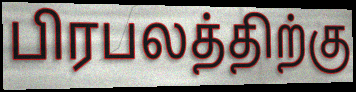
பிரபலத்திற்கு